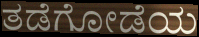
ತಡೆಗೋಡೆಯ